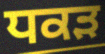
ਧਕੜ